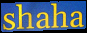
shaha